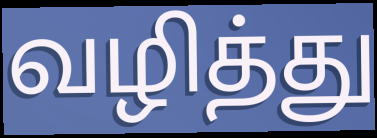
வழித்து